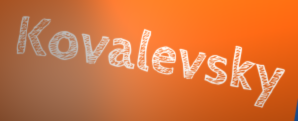
Kovalevsky